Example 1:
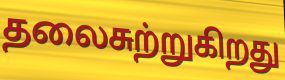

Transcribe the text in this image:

தலைசுற்றுகிறது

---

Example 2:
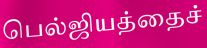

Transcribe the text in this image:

பெல்ஜியத்தைச்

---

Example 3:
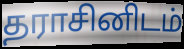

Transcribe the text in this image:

தராசினிடம்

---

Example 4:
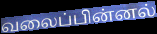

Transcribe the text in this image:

வலைப்பின்னல்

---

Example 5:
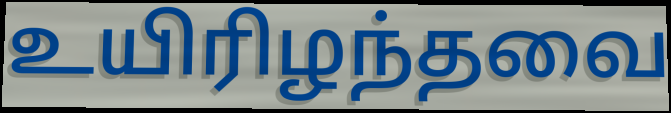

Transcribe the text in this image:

உயிரிழந்தவை